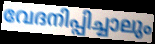
വേദനിപ്പിച്ചാലും